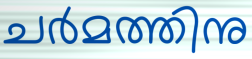
ചർമത്തിനു